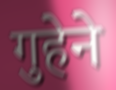
गुहेने